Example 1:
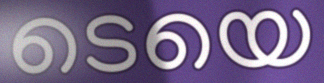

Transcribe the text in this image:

ടെയെ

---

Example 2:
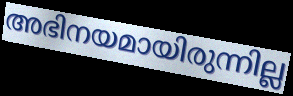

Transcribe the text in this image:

അഭിനയമായിരുന്നില്ല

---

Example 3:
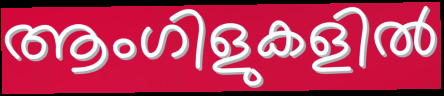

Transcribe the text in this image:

ആംഗിളുകളിൽ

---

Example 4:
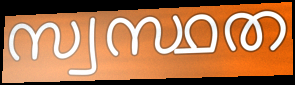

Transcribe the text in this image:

സ്വസ്ഥത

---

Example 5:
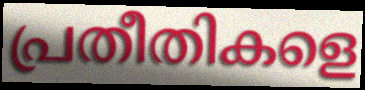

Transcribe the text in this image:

പ്രതീതികളെ